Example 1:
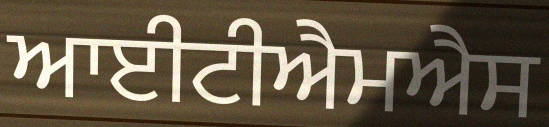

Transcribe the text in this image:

ਆਈਟੀਐਮਐਸ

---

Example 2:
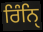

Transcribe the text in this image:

ਰਿੰਨਿੑ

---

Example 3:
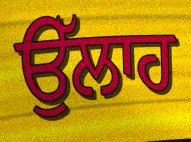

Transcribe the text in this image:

ਉੱਲਾਹ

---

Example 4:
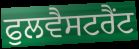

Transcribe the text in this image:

ਫੁਲਵੈਸਟਰੈਂਟ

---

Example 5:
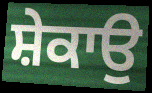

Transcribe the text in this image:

ਸ਼ੇਕਾਉ